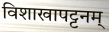
विशाखापट्टनम्